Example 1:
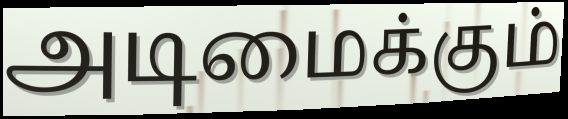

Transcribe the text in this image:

அடிமைக்கும்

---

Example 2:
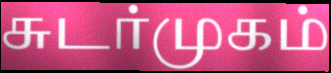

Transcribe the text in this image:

சுடர்முகம்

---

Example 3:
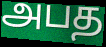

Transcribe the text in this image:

அபத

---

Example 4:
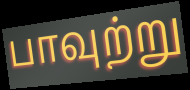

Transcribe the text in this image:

பாவுற்று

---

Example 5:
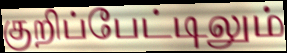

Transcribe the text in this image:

குறிப்பேட்டிலும்